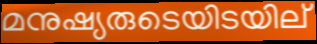
മനുഷ്യരുടെയിടയില്